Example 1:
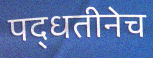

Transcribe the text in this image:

पद्धतीनेच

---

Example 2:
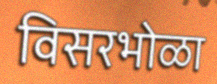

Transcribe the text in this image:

विसरभोळा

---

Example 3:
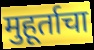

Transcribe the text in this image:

मुहूर्ताचा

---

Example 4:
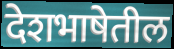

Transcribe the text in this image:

देशभाषेतील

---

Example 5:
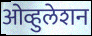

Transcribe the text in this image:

ओव्हुलेशन